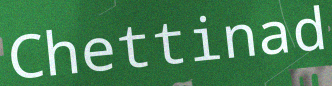
Chettinad